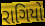
રાગિયો